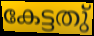
കേട്ടതു്